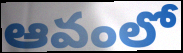
ఆవంలో